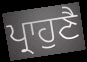
ਪ੍ਰਾਹੁਣੈ